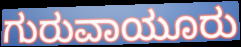
ಗುರುವಾಯೂರು